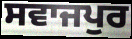
ਸਵਾਜਪੁਰ